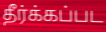
தீர்க்கப்பட